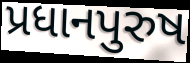
પ્રધાનપુરુષ